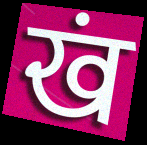
खं